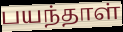
பயந்தாள்